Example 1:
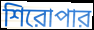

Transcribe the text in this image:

শিরোপার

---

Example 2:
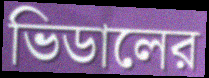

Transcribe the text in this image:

ভিডালের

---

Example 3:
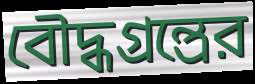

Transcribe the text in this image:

বৌদ্ধগ্রন্ত্রের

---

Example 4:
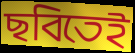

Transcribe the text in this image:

ছবিতেই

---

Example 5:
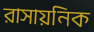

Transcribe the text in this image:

রাসায়নিক